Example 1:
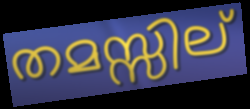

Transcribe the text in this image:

തമസ്സില്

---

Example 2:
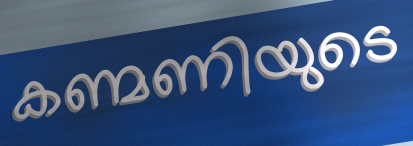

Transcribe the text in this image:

കണ്മണിയുടെ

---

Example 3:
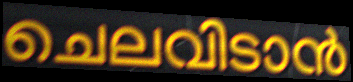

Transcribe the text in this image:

ചെലവിടാൻ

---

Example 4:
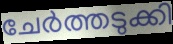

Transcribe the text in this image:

ചേർത്തടുക്കി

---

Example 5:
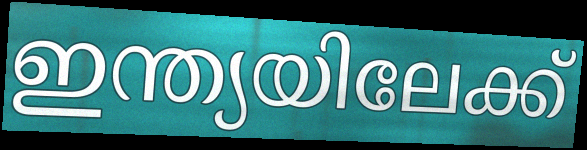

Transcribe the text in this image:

ഇന്ത്യയിലേക്ക്